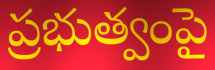
ప్రభుత్వంపై